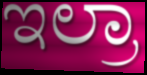
ಇಲ್ರಾ